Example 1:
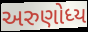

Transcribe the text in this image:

અરુણોધ્ય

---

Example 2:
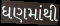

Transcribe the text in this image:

ધણમાંથી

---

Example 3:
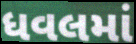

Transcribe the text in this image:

ધવલમાં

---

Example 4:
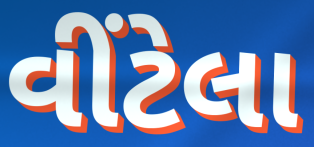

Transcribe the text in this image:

વીંટેલા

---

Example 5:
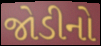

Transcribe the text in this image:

જોડીનો